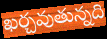
ఖర్చవుతున్నది